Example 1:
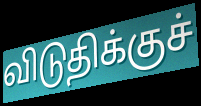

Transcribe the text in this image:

விடுதிக்குச்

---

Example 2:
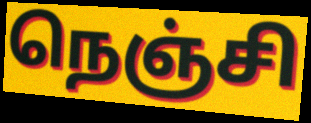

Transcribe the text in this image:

நெஞ்சி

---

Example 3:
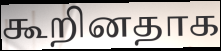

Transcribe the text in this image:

கூறினதாக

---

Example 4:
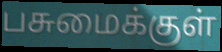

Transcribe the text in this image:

பசுமைக்குள்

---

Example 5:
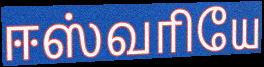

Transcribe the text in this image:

ஈஸ்வரியே